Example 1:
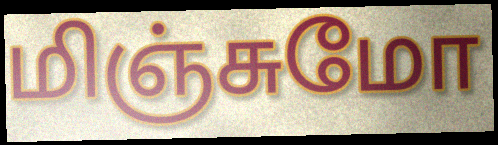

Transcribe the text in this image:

மிஞ்சுமோ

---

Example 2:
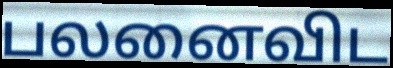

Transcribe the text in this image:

பலனைவிட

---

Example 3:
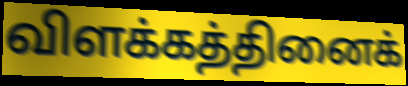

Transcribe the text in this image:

விளக்கத்தினைக்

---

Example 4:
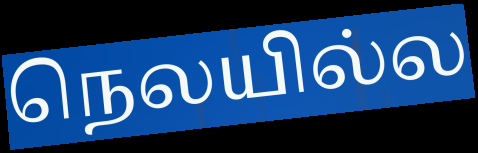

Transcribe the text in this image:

நெலயில்ல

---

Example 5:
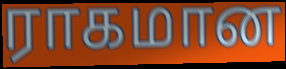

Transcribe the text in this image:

ராகமான